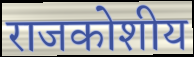
राजकोशीय